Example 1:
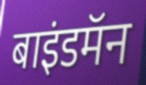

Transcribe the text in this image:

बाइंडमॅन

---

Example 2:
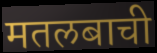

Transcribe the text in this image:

मतलबाची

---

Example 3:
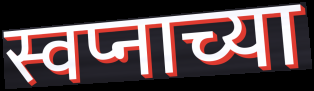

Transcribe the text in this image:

स्वप्नाच्या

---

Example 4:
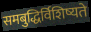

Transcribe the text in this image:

समबुद्धिर्विशिष्यते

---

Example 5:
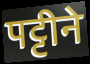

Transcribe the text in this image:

पट्टीने